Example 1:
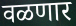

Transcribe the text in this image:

वळणार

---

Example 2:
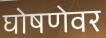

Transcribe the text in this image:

घोषणेवर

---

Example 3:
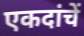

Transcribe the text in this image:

एकदांचें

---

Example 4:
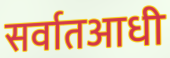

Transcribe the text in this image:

सर्वातआधी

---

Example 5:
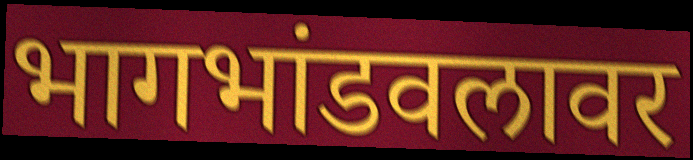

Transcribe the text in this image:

भागभांडवलावर